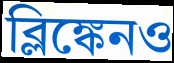
ব্লিঙ্কেনও